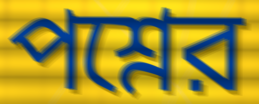
পশ্নের